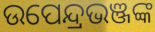
ଉପେନ୍ଦ୍ରଭଞ୍ଜଙ୍କ